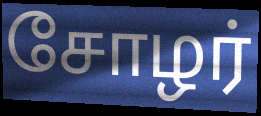
சோழர்